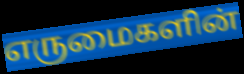
எருமைகளின்